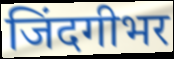
जिंदगीभर